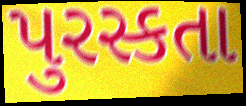
પુરસ્કતા